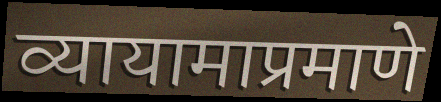
व्यायामाप्रमाणे